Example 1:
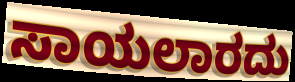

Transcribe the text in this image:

ಸಾಯಲಾರದು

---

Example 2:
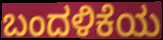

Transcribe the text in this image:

ಬಂದಳಿಕೆಯ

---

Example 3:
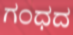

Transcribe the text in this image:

ಗಂಧದ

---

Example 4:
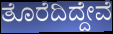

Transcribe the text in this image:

ತೊರೆದಿದ್ದೇವೆ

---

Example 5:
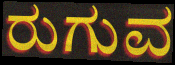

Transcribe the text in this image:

ರುಗುವ